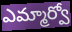
ఎమ్మార్వో